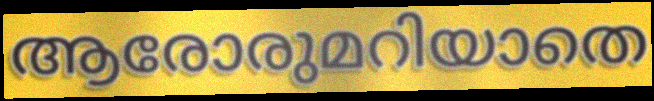
ആരോരുമറിയാതെ